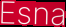
Esna